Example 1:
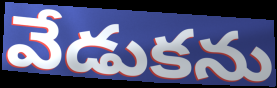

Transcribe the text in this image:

వేడుకను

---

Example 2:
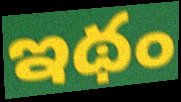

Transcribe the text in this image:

ఇథం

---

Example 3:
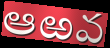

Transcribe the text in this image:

ఆఱవ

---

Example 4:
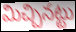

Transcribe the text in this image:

మిచ్చినట్టు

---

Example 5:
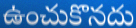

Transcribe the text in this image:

ఉంచుకొనదు